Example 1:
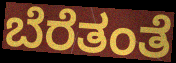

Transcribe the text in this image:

ಬೆರೆತಂತೆ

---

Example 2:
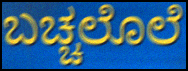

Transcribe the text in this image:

ಬಚ್ಚಲೊಲೆ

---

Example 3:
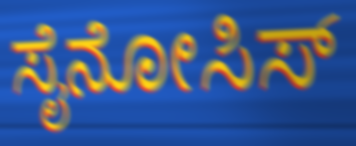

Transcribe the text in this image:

ಸೈನೋಸಿಸ್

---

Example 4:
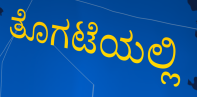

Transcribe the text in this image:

ತೊಗಟೆಯಲ್ಲಿ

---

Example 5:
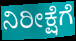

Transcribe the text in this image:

ನಿರೀಕ್ಷೆಗೆ